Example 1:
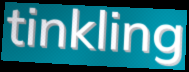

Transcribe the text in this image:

tinkling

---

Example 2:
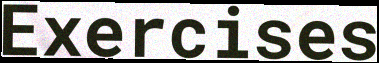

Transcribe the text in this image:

Exercises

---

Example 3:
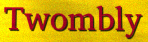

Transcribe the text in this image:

Twombly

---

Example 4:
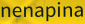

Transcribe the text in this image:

nenapina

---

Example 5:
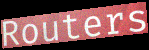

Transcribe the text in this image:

Routers